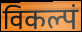
विकल्पं